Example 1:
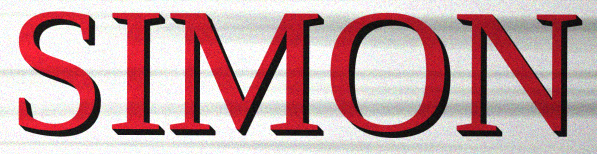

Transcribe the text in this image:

SIMON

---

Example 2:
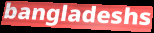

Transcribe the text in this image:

bangladeshs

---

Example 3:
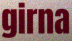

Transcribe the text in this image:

girna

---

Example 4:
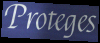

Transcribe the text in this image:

Proteges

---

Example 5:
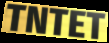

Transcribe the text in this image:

TNTET